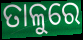
ତାଳୁରେ